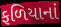
ફળિયાનાં